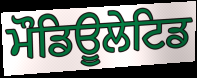
ਮੌਡਿਊਲੇਟਿਡ